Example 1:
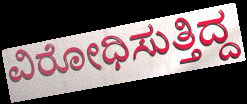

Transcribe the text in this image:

ವಿರೋಧಿಸುತ್ತಿದ್ದ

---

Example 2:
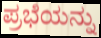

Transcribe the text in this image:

ಪ್ರಭೆಯನ್ನು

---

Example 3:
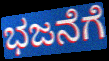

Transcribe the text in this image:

ಭಜನೆಗೆ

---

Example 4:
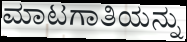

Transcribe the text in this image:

ಮಾಟಗಾತಿಯನ್ನು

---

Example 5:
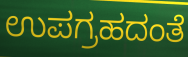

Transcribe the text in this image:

ಉಪಗ್ರಹದಂತೆ